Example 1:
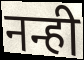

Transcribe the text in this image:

नन्ही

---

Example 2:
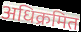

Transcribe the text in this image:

अधिक्रमित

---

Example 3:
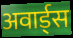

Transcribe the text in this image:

अवार्ड्स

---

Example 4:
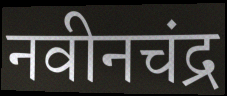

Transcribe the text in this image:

नवीनचंद्र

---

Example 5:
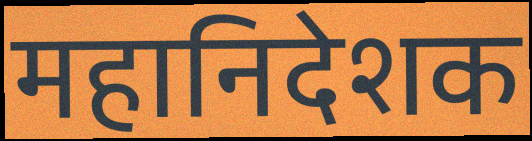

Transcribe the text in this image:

महानिदेशक